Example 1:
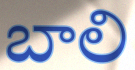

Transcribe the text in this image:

బాలి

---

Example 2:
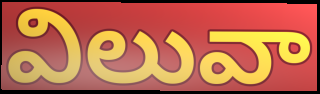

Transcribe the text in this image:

విలువా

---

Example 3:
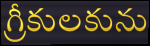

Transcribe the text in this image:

గ్రీకులకును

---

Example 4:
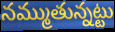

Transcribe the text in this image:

నమ్ముతున్నట్టు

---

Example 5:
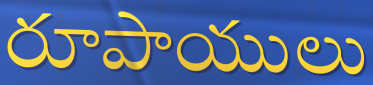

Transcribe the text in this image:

రూపాయులు